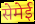
सेमेई